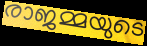
രാജമ്മയുടെ